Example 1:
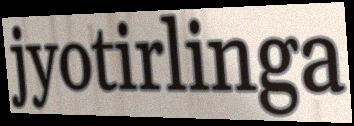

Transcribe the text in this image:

jyotirlinga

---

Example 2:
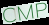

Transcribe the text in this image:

CMP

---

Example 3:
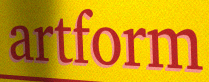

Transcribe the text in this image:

artform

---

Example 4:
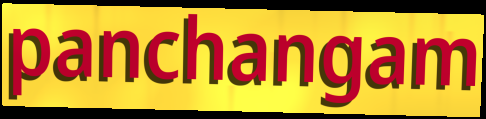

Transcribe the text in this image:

panchangam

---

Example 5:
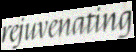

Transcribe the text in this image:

rejuvenating